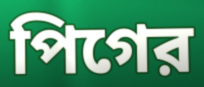
পিগের